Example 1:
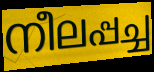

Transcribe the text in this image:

നീലപ്പച്ച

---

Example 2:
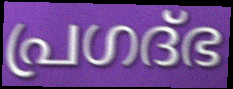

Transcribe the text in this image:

പ്രഗദ്ഭ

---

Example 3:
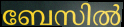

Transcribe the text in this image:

ബേസിൽ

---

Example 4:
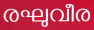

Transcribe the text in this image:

രഘുവീര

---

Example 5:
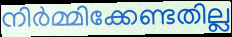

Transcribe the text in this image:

നിർമ്മിക്കേണ്ടതില്ല